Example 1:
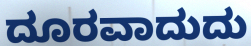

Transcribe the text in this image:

ದೂರವಾದುದು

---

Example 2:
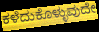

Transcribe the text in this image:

ಕಳೆದುಕೊಳ್ಳುವುದೇ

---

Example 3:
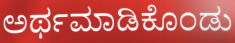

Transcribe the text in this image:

ಅರ್ಥಮಾಡಿಕೊಂಡು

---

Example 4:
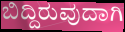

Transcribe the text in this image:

ಬಿದ್ದಿರುವುದಾಗಿ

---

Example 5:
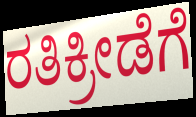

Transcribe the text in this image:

ರತಿಕ್ರೀಡೆಗೆ